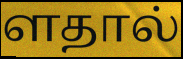
ளதால்